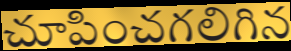
చూపించగలిగిన